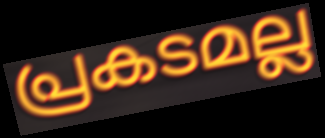
പ്രകടമല്ല